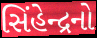
સિંહેન્દ્રનો